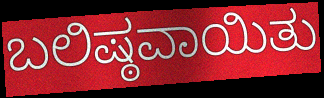
ಬಲಿಷ್ಠವಾಯಿತು